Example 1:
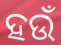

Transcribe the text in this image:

ହଉଁ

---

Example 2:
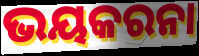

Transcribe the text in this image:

ଭୟକରନା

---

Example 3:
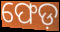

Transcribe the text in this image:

ଫେଡ଼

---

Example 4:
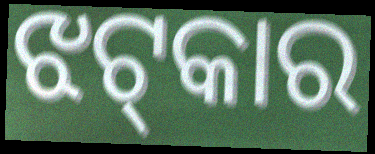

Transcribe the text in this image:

ଝଟ୍‍କାର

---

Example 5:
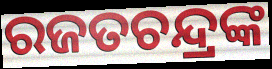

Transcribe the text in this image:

ରଜତଚନ୍ଦ୍ରଙ୍କ